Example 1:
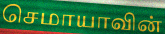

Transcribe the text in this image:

செமாயாவின்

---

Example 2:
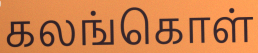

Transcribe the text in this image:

கலங்கொள்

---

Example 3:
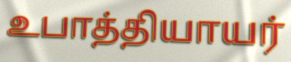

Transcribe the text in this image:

உபாத்தியாயர்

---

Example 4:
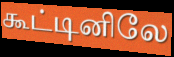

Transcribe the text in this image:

கூட்டினிலே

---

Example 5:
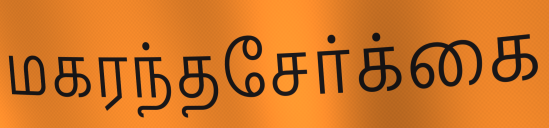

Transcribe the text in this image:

மகரந்தசேர்க்கை